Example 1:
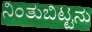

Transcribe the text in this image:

ನಿಂತುಬಿಟ್ಟನು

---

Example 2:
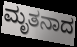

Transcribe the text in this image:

ಮೃತನಾದ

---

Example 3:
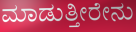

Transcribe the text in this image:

ಮಾಡುತ್ತೀರೇನು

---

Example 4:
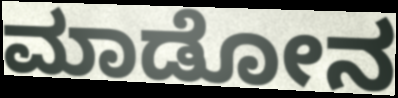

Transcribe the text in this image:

ಮಾಡೋನ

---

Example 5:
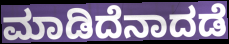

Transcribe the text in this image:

ಮಾಡಿದೆನಾದಡೆ